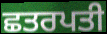
ਛਤਰਪਤੀ